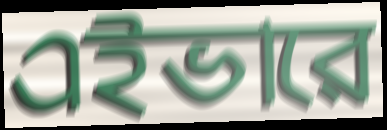
এইভাৱে